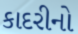
કાદરીનો